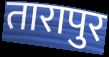
तारापुर